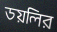
ডয়লির